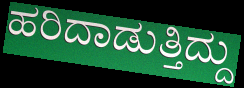
ಹರಿದಾಡುತ್ತಿದ್ದು